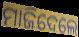
ମାଜିଦେଲେ